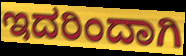
ಇದರಿಂದಾಗಿ